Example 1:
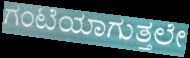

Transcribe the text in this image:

ಗಂಟೆಯಾಗುತ್ತಲೇ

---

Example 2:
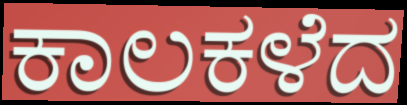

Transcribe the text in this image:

ಕಾಲಕಳೆದ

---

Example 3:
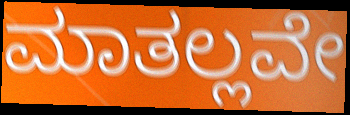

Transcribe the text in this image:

ಮಾತಲ್ಲವೇ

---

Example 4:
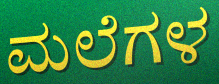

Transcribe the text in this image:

ಮಲೆಗಳ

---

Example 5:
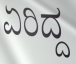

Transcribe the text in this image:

ಏರಿದ್ದ